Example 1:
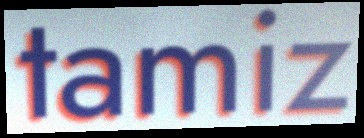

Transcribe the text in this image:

tamiz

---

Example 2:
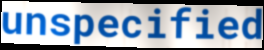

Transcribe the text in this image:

unspecified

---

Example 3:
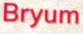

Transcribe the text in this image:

Bryum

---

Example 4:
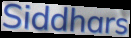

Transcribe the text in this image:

Siddhars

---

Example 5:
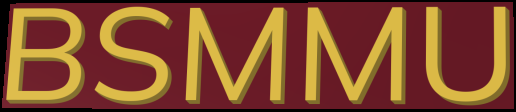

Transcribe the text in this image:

BSMMU